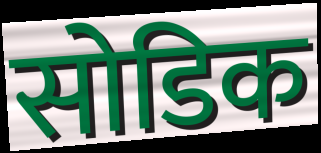
सोडिक